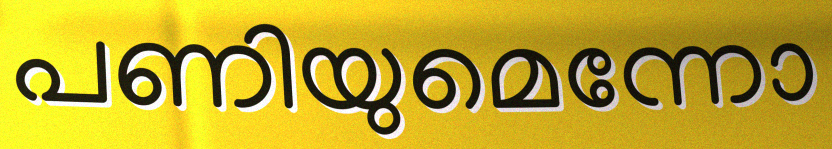
പണിയുമെന്നോ